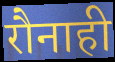
रौनाही